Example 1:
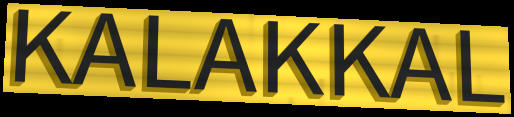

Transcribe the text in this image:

KALAKKAL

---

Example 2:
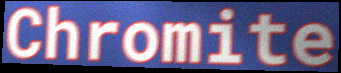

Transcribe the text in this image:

Chromite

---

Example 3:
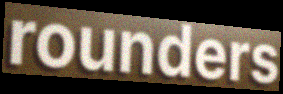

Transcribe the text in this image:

rounders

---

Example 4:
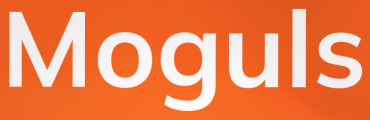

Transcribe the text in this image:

Moguls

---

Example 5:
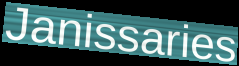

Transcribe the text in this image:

Janissaries